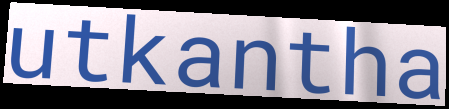
utkantha